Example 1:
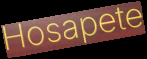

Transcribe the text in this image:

Hosapete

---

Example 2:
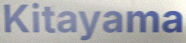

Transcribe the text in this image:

Kitayama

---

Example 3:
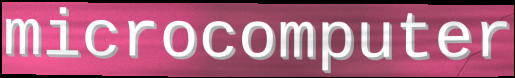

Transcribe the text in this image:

microcomputer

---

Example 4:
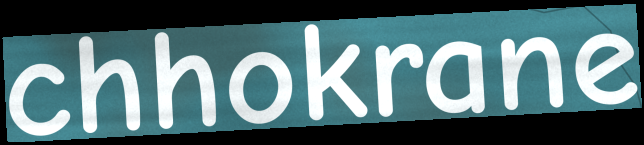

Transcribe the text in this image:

chhokrane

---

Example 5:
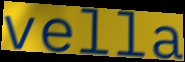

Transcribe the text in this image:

vella